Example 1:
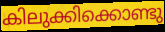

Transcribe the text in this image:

കിലുക്കിക്കൊണ്ടു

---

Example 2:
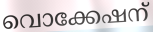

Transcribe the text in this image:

വൊക്കേഷന്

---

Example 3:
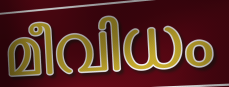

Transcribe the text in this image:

മീവിധം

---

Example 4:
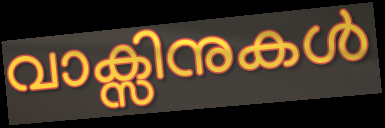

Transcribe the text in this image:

വാക്സിനുകൾ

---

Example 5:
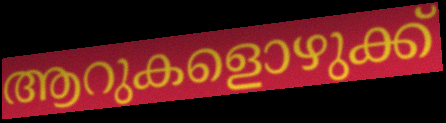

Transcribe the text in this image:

ആറുകളൊഴുക്ക്